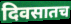
दिवसातच